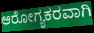
ಆರೋಗ್ಯಕರವಾಗಿ